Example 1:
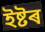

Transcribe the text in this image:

ইষ্টৰ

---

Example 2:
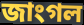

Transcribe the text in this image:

জাংগল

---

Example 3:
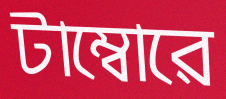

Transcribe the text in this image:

টাম্বোৱে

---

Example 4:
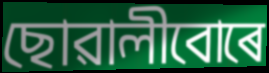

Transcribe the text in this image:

ছোৱালীবোৰে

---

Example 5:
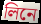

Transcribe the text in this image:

লিনে